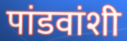
पांडवांशी